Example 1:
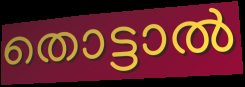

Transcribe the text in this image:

തൊട്ടാൽ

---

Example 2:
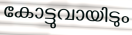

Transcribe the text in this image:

കോട്ടുവായിടും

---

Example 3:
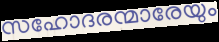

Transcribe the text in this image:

സഹോദരന്മാരേയും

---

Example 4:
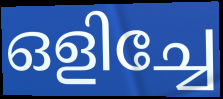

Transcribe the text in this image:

ഒളിച്ചേ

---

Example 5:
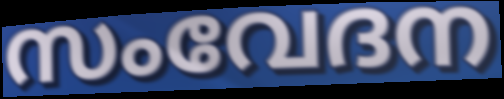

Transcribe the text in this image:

സംവേദന